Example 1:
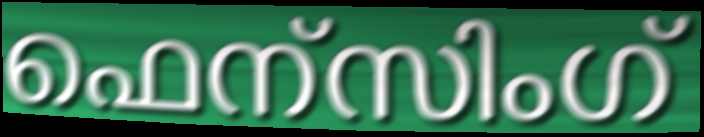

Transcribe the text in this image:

ഫെന്സിംഗ്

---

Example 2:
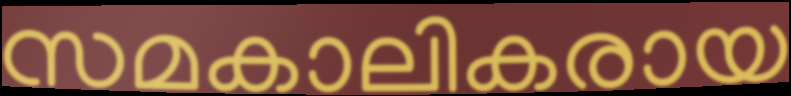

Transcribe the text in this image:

സമകാലികരായ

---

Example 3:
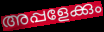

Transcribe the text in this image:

അപ്പളേക്കും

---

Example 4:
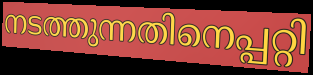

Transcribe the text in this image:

നടത്തുന്നതിനെപ്പറ്റി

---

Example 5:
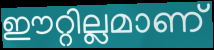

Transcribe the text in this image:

ഈറ്റില്ലമാണ്